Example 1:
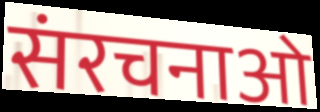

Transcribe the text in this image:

संरचनाओ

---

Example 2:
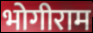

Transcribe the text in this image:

भोगीराम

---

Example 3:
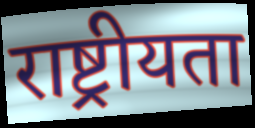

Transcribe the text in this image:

राष्ट्रीयता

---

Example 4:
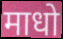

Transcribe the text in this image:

माधो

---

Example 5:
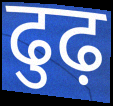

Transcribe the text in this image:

ढुढ़